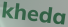
kheda